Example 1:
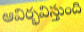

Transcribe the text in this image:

ఆవిర్భవిస్తుంది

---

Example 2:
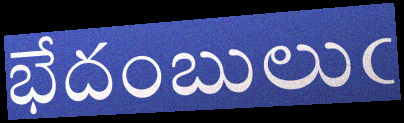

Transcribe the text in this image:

భేదంబులుఁ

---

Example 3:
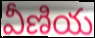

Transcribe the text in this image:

వీణియ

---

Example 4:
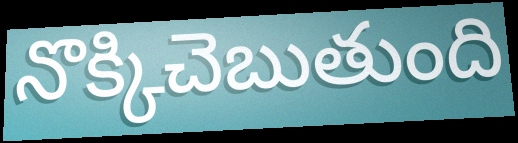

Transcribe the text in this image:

నొక్కిచెబుతుంది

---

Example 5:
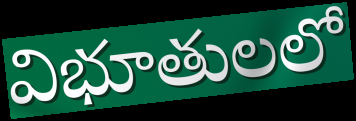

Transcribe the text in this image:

విభూతులలో